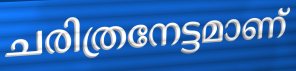
ചരിത്രനേട്ടമാണ്